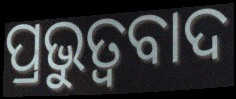
ପ୍ରଭୁତ୍ବବାଦ